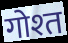
गोश्‍त